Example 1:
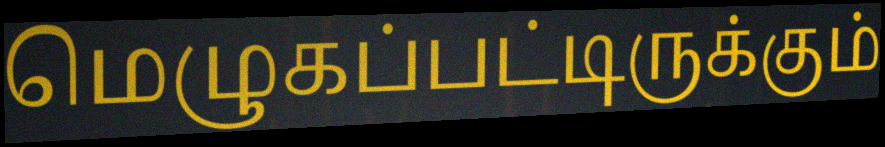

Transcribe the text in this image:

மெழுகப்பட்டிருக்கும்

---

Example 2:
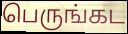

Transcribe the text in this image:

பெருங்கட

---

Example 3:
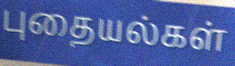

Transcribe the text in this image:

புதையல்கள்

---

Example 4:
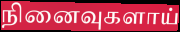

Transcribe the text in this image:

நினைவுகளாய்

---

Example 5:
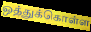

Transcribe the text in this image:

ஒத்துக்கொள்ள